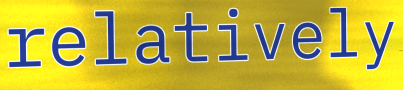
relatively